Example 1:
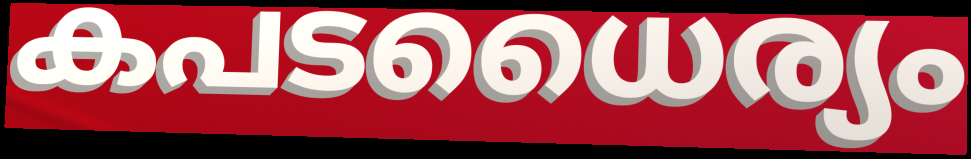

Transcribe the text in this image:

കപടധൈര്യം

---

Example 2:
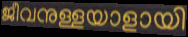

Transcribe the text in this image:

ജീവനുള്ളയാളായി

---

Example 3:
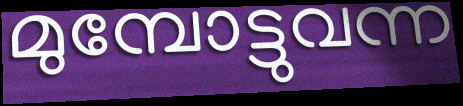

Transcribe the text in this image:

മുമ്പോട്ടുവന്ന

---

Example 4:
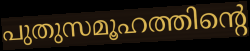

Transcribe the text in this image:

പുതുസമൂഹത്തിന്റെ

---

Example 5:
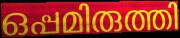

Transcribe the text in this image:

ഒപ്പമിരുത്തി